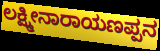
ಲಕ್ಷ್ಮೀನಾರಾಯಣಪ್ಪನ